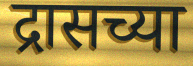
द्रासच्या